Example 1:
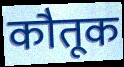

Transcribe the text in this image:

कौतूक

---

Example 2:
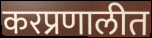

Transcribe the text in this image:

करप्रणालीत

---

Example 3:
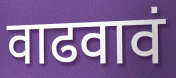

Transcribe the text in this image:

वाढवावं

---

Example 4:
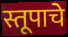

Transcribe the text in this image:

स्तूपाचे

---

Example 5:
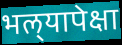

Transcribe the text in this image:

भल्यापेक्षा